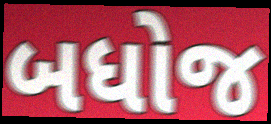
બધોજ